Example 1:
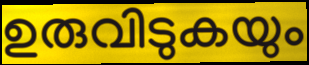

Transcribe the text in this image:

ഉരുവിടുകയും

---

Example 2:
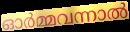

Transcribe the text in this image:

ഓർമ്മവന്നാൽ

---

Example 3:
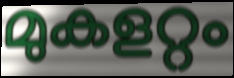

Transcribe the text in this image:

മുകളറ്റം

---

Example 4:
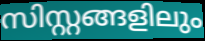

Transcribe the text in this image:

സിസ്റ്റങ്ങളിലും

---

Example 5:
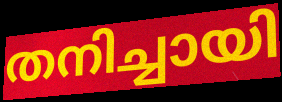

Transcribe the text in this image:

തനിച്ചായി